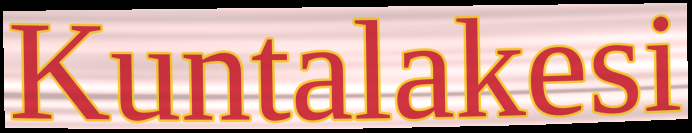
Kuntalakesi